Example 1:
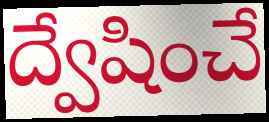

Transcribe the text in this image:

ద్వేషించే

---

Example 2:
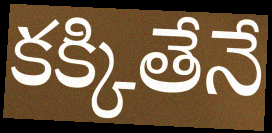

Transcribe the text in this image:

కక్కితేనే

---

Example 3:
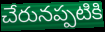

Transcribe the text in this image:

చేరునప్పటికి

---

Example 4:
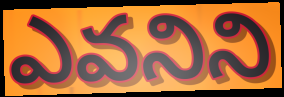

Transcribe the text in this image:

ఎవనిని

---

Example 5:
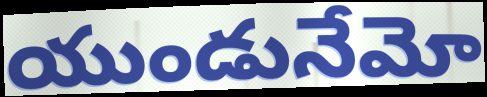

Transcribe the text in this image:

యుండునేమో